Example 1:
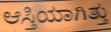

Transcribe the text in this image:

ಆಸ್ತಿಯಾಗಿತ್ತು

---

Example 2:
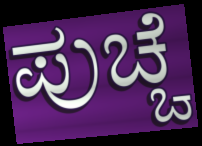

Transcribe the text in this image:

ಪುಚ್ಚೆ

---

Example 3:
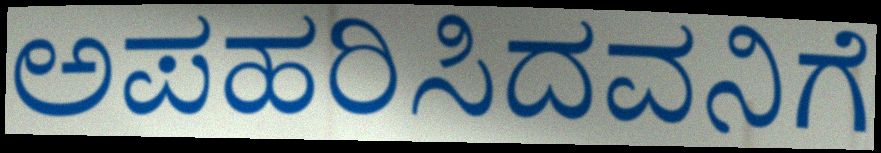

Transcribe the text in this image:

ಅಪಹರಿಸಿದವನಿಗೆ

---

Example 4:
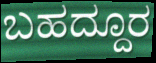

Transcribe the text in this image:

ಬಹದ್ದೂರ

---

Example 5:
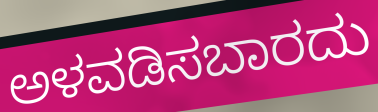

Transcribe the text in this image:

ಅಳವಡಿಸಬಾರದು